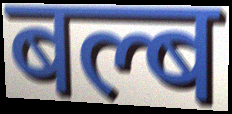
बल्‍ब